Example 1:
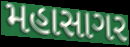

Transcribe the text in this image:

મહાસાગર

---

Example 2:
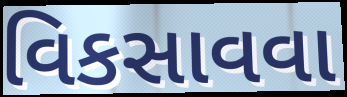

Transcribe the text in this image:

વિકસાવવા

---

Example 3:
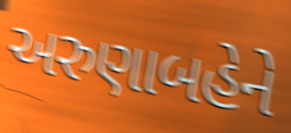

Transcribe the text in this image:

અરુણાબહેને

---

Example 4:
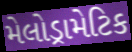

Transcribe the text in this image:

મેલોડ્રામેટિક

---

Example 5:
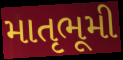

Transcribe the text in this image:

માતૃભૂમી